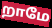
றாமே